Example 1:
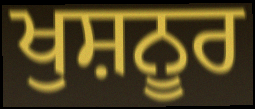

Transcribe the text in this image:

ਖੁਸ਼ਨੂਰ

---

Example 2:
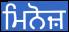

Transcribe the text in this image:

ਮਿਨੋਜ਼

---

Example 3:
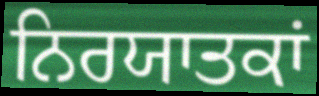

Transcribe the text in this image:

ਨਿਰਯਾਤਕਾਂ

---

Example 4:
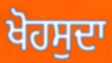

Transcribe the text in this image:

ਖੋਹਸੁਦਾ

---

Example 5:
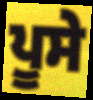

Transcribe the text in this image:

ਪੂਸੇ